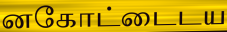
னகோட்டைடய